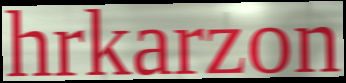
hrkarzon